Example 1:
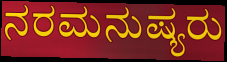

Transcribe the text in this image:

ನರಮನುಷ್ಯರು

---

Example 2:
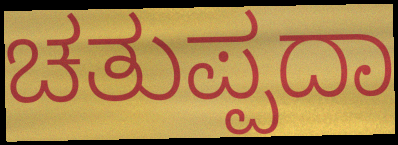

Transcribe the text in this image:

ಚತುಪ್ಪದಾ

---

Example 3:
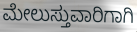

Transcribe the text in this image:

ಮೇಲುಸ್ತುವಾರಿಗಾಗಿ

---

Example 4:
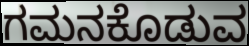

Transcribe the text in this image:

ಗಮನಕೊಡುವ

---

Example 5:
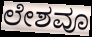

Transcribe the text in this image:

ಲೇಶವೂ